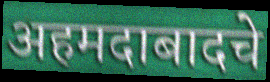
अहमदाबादचे